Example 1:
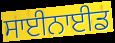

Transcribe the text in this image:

ਸਾਈਨਾਈਡ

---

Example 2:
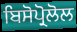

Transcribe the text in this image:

ਬਿਸੋਪ੍ਰੋਲੋਲ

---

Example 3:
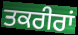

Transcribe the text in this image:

ਤਕਰੀਰਾਂ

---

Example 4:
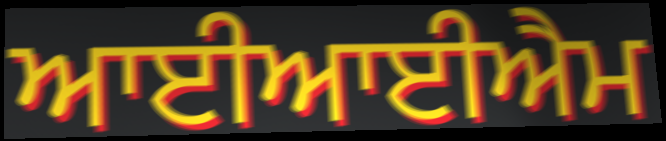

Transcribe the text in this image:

ਆਈਆਈਐਮ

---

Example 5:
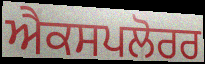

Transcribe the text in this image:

ਐਕਸਪਲੋਰਰ